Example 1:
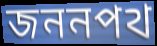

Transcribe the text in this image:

জননপথ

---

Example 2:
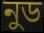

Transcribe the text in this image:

নুড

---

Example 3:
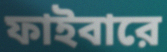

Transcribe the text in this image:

ফাইবারে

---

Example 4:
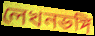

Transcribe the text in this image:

লেখনভঙ্গি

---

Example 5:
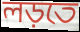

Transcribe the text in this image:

লড়তে